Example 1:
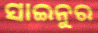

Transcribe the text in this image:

ସାଇନୁର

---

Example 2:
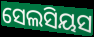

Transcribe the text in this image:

ସେଲସିୟସ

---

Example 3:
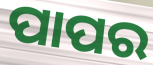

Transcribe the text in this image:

ପାପର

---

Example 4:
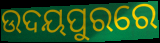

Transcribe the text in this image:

ଉଦୟପୁରରେ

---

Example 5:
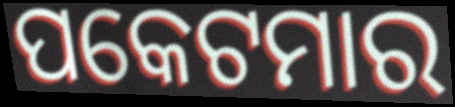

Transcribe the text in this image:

ପକେଟମାର